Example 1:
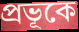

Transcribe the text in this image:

প্রভূকে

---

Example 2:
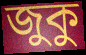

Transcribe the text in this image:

জুকু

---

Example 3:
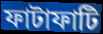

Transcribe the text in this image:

ফাটাফাটি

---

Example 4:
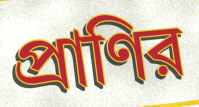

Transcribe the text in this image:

প্রাণির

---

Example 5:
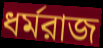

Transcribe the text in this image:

ধর্মরাজ